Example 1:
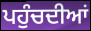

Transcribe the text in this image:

ਪਹੁੰਚਦੀਆਂ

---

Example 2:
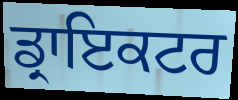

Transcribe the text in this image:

ਡ੍ਰਾਇਕਟਰ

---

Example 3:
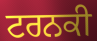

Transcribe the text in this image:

ਟਰਨਕੀ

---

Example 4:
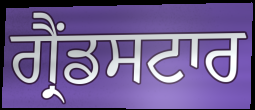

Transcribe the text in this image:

ਗ੍ਰੈਂਡਸਟਾਰ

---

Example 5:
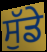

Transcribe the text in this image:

ਸੁੱਡੇ